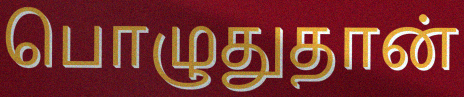
பொழுதுதான்